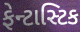
ફેન્ટાસ્ટિક